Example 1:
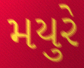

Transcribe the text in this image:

મયુરે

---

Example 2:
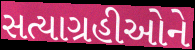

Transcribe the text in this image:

સત્યાગ્રહીઓને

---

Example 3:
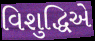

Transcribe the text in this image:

વિશુદ્ધિએ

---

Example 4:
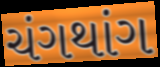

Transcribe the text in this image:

ચંગથાંગ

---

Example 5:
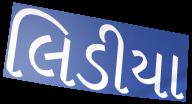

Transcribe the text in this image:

લિડીયા